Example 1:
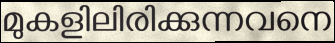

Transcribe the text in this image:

മുകളിലിരിക്കുന്നവനെ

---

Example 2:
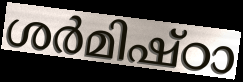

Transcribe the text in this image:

ശർമിഷ്ഠാ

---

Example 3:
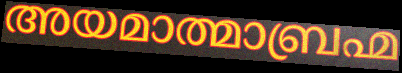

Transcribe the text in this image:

അയമാത്മാബ്രഹ്മ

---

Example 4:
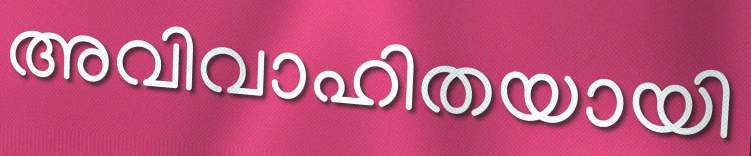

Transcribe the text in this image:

അവിവാഹിതയായി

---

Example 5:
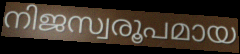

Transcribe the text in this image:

നിജസ്വരൂപമായ